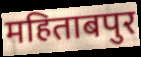
महिताबपुर